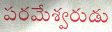
పరమేశ్వరుడు